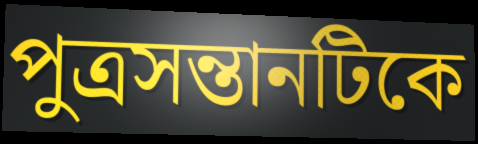
পুত্রসন্তানটিকে